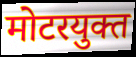
मोटरयुक्त